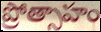
ప్రోత్సాహం